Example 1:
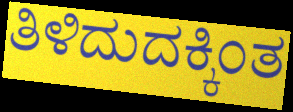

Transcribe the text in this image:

ತಿಳಿದುದಕ್ಕಿಂತ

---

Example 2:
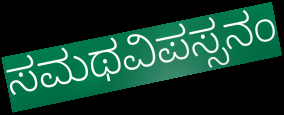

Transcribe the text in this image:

ಸಮಥವಿಪಸ್ಸನಂ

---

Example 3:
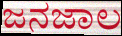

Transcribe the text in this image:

ಜನಜಾಲ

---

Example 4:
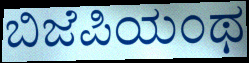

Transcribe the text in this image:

ಬಿಜೆಪಿಯಂಥ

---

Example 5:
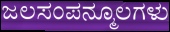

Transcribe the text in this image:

ಜಲಸಂಪನ್ಮೂಲಗಳು